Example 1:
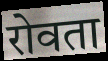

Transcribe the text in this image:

रोवता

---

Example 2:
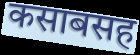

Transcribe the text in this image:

कसाबसह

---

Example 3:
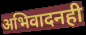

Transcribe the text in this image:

अभिवादनही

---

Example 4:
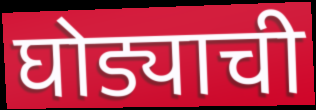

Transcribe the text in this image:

घोड्याची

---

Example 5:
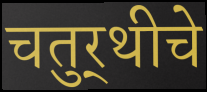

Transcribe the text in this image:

चतुर्थीचे